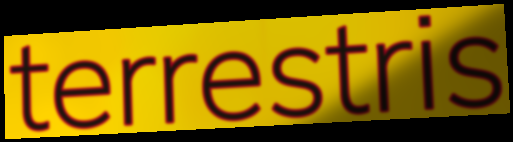
terrestris